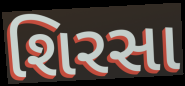
શિરસા